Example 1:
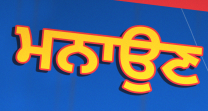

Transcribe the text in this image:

ਮਨਾਉਣ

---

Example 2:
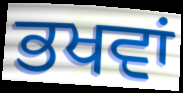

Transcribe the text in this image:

ਭਖਵਾਂ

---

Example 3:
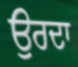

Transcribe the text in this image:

ਉਰਦਾ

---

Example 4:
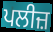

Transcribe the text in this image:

ਪਲੀਜ਼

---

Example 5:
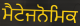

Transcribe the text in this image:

ਮੈਟੇਜਨੋਮਿਕ